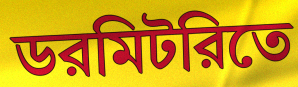
ডরমিটরিতে